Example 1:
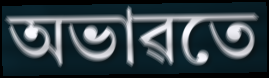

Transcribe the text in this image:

অভাৱতে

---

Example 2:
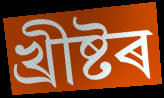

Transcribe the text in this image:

খ্ৰীষ্টৰ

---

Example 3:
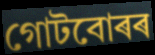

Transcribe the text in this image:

গোটবোৰৰ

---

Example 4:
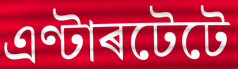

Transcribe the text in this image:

এণ্টাৰটেটে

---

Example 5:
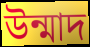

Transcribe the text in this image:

উন্মাদ